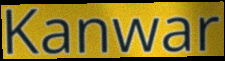
Kanwar